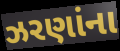
ઝરણાંના